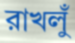
রাখলুঁ